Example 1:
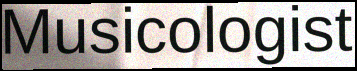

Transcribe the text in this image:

Musicologist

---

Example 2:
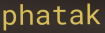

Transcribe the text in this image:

phatak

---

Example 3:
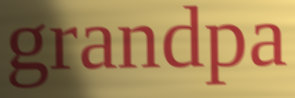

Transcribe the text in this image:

grandpa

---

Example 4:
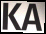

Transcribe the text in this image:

KA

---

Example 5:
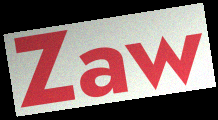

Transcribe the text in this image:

Zaw